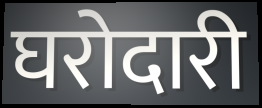
घरोदारी